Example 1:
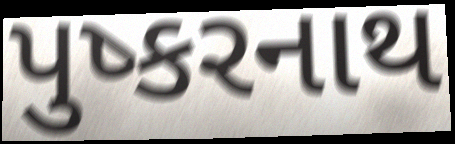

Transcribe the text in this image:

પુષ્કરનાથ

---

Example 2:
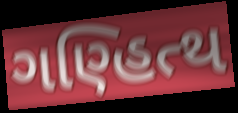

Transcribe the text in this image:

ગણ્હિત્થ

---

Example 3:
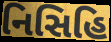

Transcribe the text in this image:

નિસિહિ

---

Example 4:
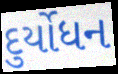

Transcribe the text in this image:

દુર્યોધન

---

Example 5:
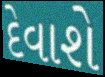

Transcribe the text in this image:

દેવાશે